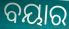
ବୟାର